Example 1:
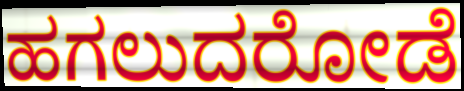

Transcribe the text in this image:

ಹಗಲುದರೋಡೆ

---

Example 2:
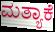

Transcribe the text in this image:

ಮತ್ಯಾಕೆ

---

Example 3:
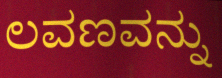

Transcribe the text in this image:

ಲವಣವನ್ನು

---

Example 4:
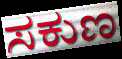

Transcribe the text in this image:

ಸಕುಣ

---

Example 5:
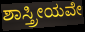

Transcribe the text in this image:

ಶಾಸ್ತ್ರೀಯವೇ